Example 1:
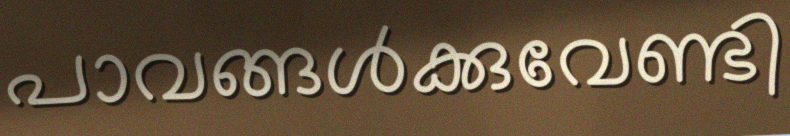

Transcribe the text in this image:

പാവങ്ങൾക്കുവേണ്ടി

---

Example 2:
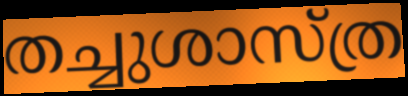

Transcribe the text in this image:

തച്ചുശാസ്ത്ര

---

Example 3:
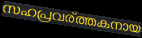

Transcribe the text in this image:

സഹപ്രവര്ത്തകനായ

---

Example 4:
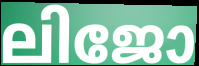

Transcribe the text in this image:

ലിജോ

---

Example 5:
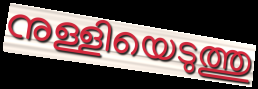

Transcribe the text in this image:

നുള്ളിയെടുത്തു